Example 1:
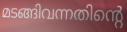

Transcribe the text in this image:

മടങ്ങിവന്നതിന്റെ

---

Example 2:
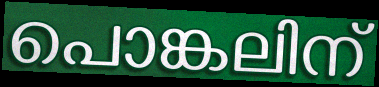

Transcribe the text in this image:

പൊങ്കലിന്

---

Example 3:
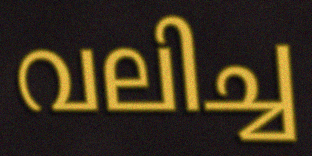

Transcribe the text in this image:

വലിച്ച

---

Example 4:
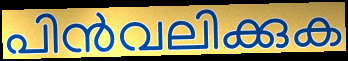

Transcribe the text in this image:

പിൻവലിക്കുക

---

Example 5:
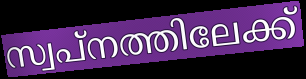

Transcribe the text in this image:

സ്വപ്നത്തിലേക്ക്